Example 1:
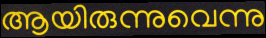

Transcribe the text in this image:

ആയിരുന്നുവെന്നു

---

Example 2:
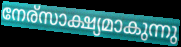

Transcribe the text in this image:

നേര്സാക്ഷ്യമാകുന്നു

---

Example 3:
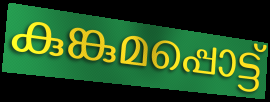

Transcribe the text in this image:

കുങ്കുമപ്പൊട്ട്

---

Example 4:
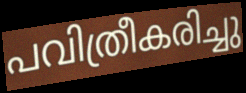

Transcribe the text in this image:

പവിത്രീകരിച്ചു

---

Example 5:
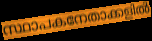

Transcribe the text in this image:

സ്ഥാപകനേതാക്കളിൽ